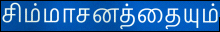
சிம்மாசனத்தையும்